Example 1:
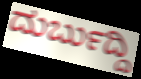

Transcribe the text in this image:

ದುರ್ಬುದ್ದಿ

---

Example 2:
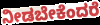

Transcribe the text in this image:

ನೀಡಬೇಕೆಂದರೆ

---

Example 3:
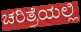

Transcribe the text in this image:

ಚರಿತ್ರೆಯಲ್ಲಿ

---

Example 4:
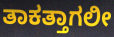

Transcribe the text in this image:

ತಾಕತ್ತಾಗಲೀ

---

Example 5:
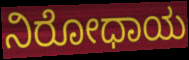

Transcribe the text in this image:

ನಿರೋಧಾಯ